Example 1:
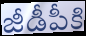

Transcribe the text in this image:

జీడీపీకి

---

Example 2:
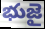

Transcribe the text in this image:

భుజై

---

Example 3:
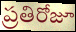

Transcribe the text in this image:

ప్రతిరోజూ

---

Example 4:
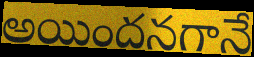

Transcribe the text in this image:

అయిందనగానే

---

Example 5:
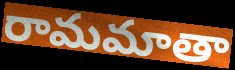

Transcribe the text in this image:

రామమాతా